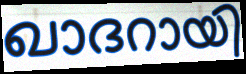
ഖാദറായി